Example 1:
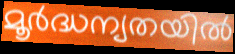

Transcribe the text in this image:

മൂർദ്ധന്യതയിൽ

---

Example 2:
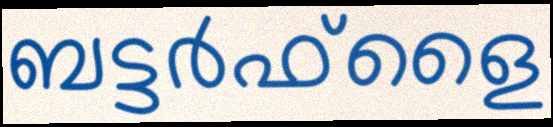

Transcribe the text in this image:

ബട്ടർഫ്ളൈ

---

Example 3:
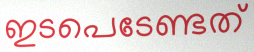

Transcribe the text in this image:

ഇടപെടേണ്ടത്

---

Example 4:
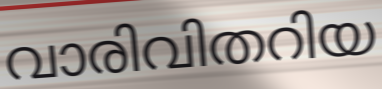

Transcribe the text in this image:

വാരിവിതറിയ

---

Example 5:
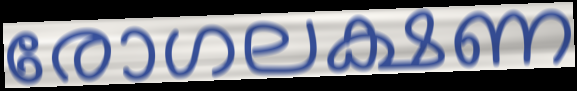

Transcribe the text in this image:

രോഗലക്ഷണ